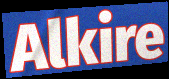
Alkire